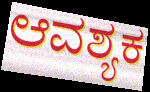
ಆವಶ್ಯಕ